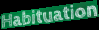
Habituation